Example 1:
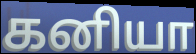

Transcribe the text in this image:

கனியா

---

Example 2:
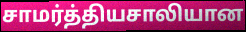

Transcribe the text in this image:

சாமர்த்தியசாலியான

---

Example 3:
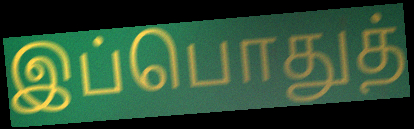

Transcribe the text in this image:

இப்பொதுத்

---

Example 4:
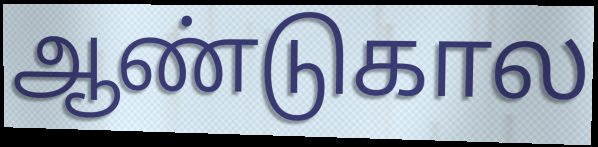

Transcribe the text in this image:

ஆண்டுகால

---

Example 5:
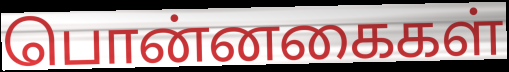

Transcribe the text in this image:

பொன்னகைகள்